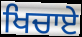
ਖਿਚਾਏ